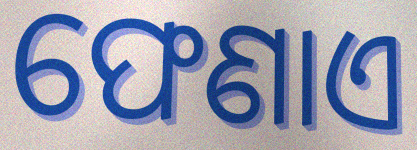
ଫେଣାଏ